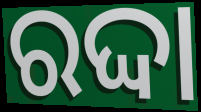
ରଦ୍ଦା